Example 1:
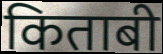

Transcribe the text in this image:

किताबी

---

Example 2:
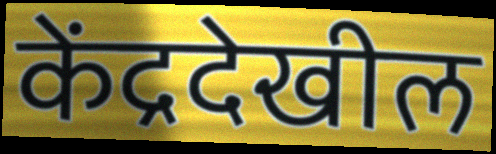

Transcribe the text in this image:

केंद्रदेखील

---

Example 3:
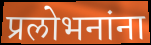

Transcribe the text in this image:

प्रलोभनांना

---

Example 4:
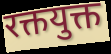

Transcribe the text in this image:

रक्तयुक्त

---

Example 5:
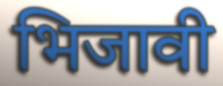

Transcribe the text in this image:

भिजावी